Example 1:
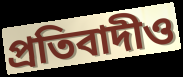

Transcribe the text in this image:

প্রতিবাদীও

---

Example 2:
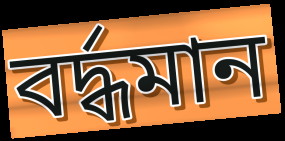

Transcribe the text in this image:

বর্দ্ধমান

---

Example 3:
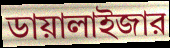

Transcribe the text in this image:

ডায়ালাইজার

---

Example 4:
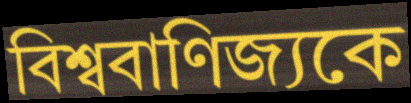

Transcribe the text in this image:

বিশ্ববাণিজ্যকে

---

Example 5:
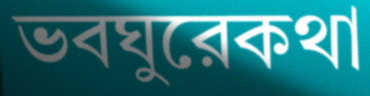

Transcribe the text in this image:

ভবঘুরেকথা